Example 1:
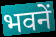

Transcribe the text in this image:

भवनें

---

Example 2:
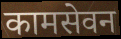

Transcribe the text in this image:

कामसेवन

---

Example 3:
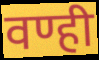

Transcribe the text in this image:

वण्ही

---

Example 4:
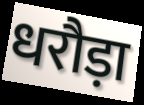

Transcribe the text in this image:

धरौड़ा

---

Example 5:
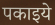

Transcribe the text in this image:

पकाइये